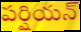
పర్షియన్